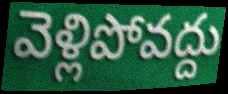
వెళ్లిపోవద్దు